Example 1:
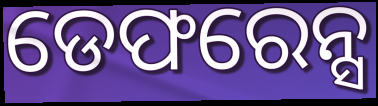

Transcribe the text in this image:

ଡେଫରେନ୍ସ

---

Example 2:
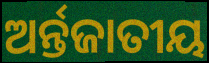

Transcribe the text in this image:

ଅର୍ନ୍ତଜାତୀୟ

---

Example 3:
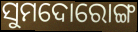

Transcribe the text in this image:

ସୁମଦୋରୋଙ୍ଗ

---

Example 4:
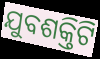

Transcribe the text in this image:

ଯୁବଶକ୍ତିଟି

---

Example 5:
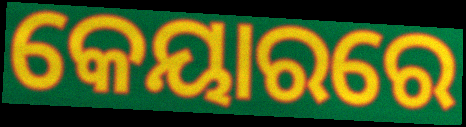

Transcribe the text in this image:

କେୟାରରେ